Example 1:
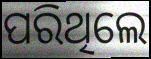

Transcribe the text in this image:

ପରିଥିଲେ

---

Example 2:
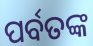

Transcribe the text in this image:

ପର୍ବତଙ୍କ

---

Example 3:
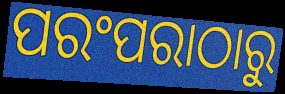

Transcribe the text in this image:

ପରଂପରାଠାରୁ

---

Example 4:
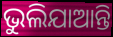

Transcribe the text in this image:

ଭୁଲିଯାଆନ୍ତି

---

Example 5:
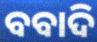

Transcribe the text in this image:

ବବାଦି